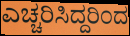
ಎಚ್ಚರಿಸಿದ್ದರಿಂದ